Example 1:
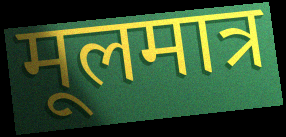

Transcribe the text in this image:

मूलमात्र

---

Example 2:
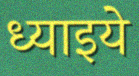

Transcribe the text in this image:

ध्याइये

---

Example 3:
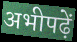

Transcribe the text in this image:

अभीपढ़ें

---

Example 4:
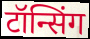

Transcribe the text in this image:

टॉन्सिंग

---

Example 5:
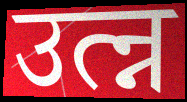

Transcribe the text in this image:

उत्न्न